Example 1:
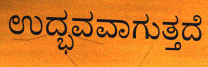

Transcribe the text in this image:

ಉದ್ಭವವಾಗುತ್ತದೆ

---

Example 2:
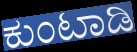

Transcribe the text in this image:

ಕುಂಟಾಡಿ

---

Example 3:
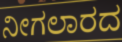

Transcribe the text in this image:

ನೀಗಲಾರದ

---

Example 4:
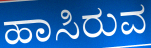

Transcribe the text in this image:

ಹಾಸಿರುವ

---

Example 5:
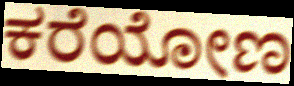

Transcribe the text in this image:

ಕರೆಯೋಣ